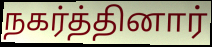
நகர்த்தினார்